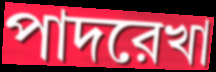
পাদরেখা